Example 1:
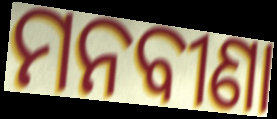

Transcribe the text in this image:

ମନବୀଣା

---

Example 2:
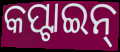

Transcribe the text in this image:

କପ୍ଟାଇନ୍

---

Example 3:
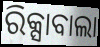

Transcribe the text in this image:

ରିକ୍ସାବାଲା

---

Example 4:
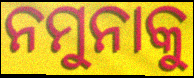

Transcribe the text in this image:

ନମୁନାକୁ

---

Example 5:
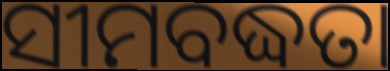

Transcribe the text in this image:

ସୀମବଦ୍ଧତା